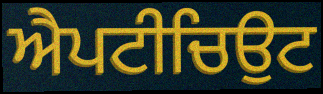
ਐਪਟੀਚਿਉਟ